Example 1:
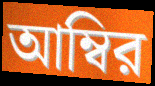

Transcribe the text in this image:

আম্বির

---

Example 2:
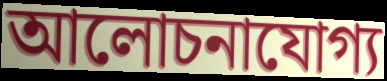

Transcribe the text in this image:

আলোচনাযোগ্য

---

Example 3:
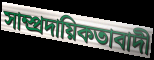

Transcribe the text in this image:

সাম্প্রদায়িকতাবাদী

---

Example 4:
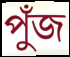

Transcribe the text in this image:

পুঁজ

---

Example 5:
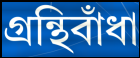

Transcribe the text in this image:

গ্রন্থিবাঁধা